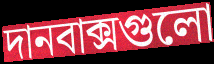
দানবাক্সগুলো